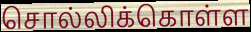
சொல்லிக்கொள்ள